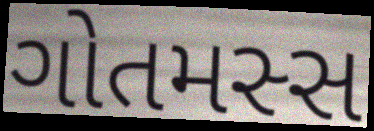
ગોતમસ્સ